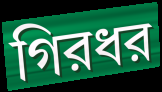
গিরধর